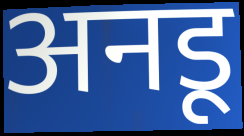
अनडू